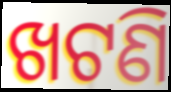
ଖଟଣି